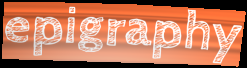
epigraphy